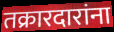
तक्रारदारांना